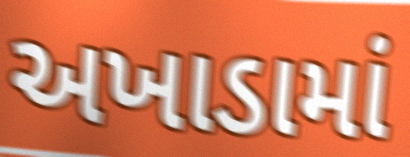
અખાડામાં